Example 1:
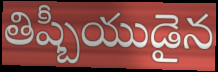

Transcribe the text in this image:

తిష్బీయుడైన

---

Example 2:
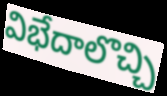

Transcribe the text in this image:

విభేదాలొచ్చి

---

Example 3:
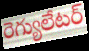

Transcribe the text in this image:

రెగ్యులేటర్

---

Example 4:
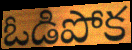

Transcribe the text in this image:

ఓడిపోక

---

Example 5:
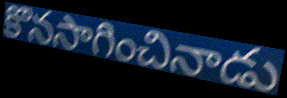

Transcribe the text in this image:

కొనసాగించినాడు